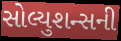
સોલ્યુશન્સની